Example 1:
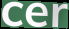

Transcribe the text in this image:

cer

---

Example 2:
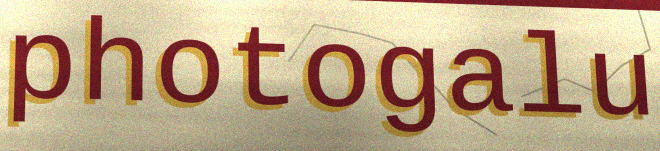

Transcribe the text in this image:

photogalu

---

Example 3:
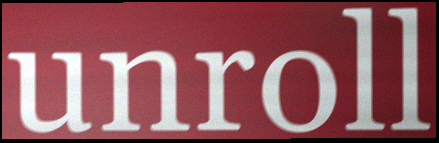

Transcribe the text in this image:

unroll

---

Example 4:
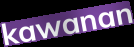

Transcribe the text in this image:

kawanan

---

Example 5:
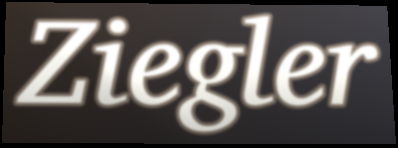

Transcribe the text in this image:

Ziegler